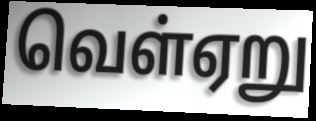
வெள்ஏறு